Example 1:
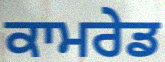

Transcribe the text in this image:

ਕਾਮਰੇਡ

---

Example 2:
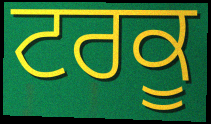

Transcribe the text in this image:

ਟਰਕੂ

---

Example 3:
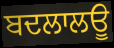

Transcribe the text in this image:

ਬਦਲਾਲਊ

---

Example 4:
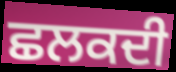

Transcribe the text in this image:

ਛਲਕਦੀ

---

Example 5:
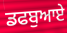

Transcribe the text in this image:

ਡਫਬੁਆਏ